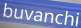
buvanchi